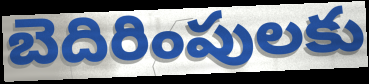
బెదిరింపులకు